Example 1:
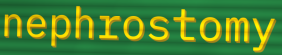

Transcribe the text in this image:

nephrostomy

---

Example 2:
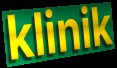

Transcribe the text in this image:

klinik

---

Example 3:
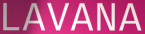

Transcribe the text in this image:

LAVANA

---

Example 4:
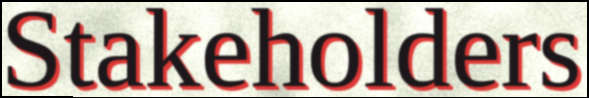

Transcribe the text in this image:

Stakeholders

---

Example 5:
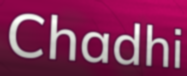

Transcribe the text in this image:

Chadhi